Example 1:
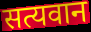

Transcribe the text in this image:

सत्यवान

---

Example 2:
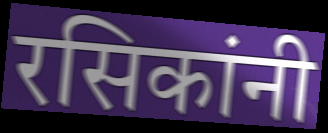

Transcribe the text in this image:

रसिकांनी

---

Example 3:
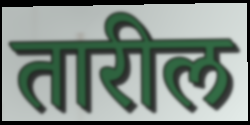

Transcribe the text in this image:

तारील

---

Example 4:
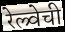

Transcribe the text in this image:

रेल्वेची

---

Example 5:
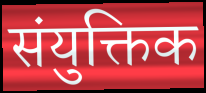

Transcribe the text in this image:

संयुक्तिक